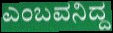
ಎಂಬವನಿದ್ದ